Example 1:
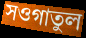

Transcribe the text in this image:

সওগাতুল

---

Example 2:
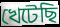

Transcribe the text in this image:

খেটেছি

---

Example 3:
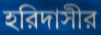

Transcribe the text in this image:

হরিদাসীর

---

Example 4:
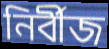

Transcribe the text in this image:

নির্বীজ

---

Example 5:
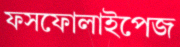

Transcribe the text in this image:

ফসফোলাইপেজ